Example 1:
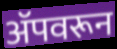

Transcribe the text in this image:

ॲपवरून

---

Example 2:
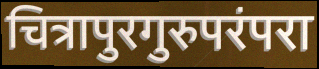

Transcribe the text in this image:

चित्रापुरगुरुपरंपरा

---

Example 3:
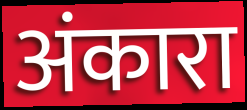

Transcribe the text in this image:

अंकारा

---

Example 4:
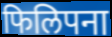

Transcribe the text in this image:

फिलिपना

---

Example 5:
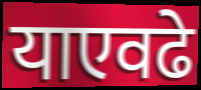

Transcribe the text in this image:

याएवढे